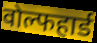
वोल्फहार्ड